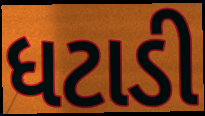
ધટાડી